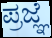
ಪ್ರಜ್ಞೆ